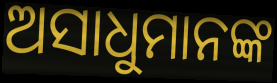
ଅସାଧୁମାନଙ୍କ